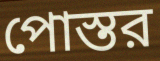
পোস্তর